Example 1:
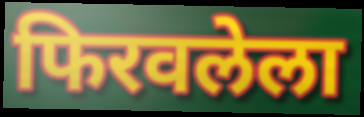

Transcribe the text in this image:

फिरवलेला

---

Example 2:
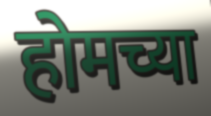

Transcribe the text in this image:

होमच्या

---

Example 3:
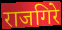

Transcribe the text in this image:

राजगिरे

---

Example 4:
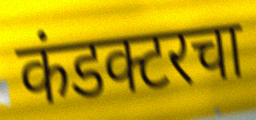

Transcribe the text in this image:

कंडक्टरचा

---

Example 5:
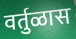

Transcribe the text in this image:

वर्तुळास